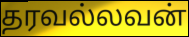
தரவல்லவன்